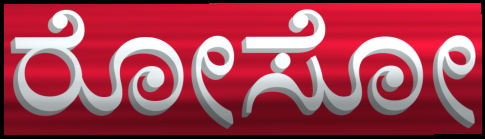
ರೋಸೋ